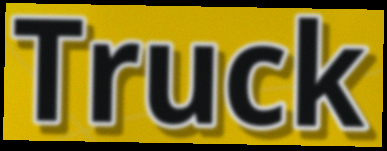
Truck